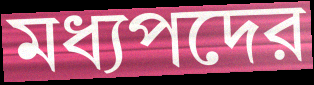
মধ্যপদের